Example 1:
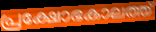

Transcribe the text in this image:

പ്രക്ഷോഭകാലത്ത്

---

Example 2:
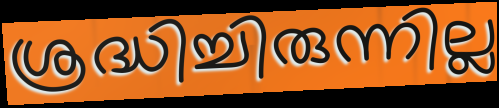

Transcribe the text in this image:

ശ്രദ്ധിച്ചിരുന്നില്ല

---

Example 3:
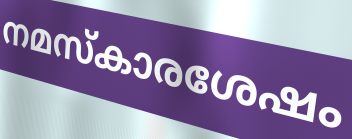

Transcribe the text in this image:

നമസ്കാരശേഷം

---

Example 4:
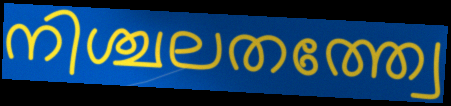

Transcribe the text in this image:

നിശ്ചലതത്ത്വേ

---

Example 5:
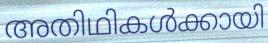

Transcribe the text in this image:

അതിഥികൾക്കായി